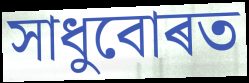
সাধুবোৰত